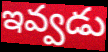
ఇవ్వడు